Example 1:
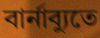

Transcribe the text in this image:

বার্নাব্যুতে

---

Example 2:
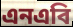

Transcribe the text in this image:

এনএবি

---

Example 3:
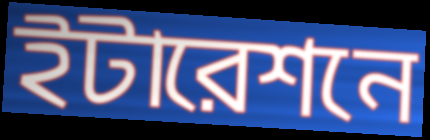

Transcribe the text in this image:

ইটারেশনে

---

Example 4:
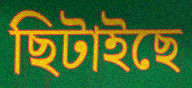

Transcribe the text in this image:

ছিটাইছে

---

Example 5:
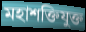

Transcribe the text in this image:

মহাশক্তিযুক্ত